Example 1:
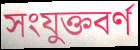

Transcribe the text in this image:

সংযুক্তবর্ণ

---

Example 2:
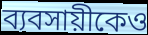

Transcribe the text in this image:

ব্যবসায়ীকেও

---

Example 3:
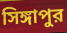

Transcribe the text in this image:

সিঙ্গাপুর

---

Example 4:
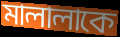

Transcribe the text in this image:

মালালাকে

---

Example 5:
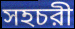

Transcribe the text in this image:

সহচরী